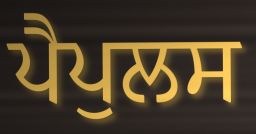
ਪੈਪੁਲਸ